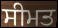
ਸੀਮਤ